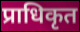
प्राधिकृत